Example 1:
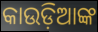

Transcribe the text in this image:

କାଉଡ଼ିଆଙ୍କ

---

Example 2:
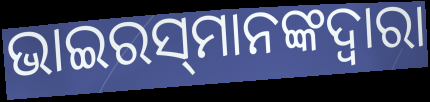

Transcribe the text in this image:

ଭାଇରସ୍‌ମାନଙ୍କଦ୍ୱାରା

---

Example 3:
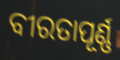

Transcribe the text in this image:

ବୀରତାପୂର୍ଣ୍ଣ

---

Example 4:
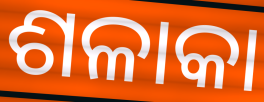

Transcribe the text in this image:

ଶଳାକା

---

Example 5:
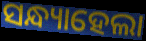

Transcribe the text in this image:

ସନ୍ଧ୍ୟାହେଲା